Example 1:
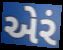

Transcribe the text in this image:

એરં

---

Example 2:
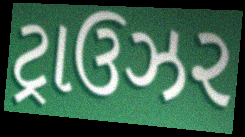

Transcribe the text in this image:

ટ્રાઉઝર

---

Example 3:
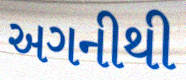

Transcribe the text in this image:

અગનીથી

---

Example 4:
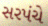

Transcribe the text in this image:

સરપંચે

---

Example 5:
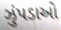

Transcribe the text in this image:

ઝુંપડાઓ